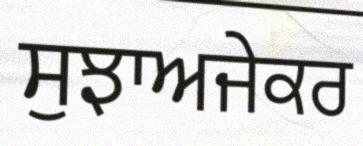
ਸੁਝਾਅਜੇਕਰ